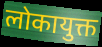
लोकायुक्त